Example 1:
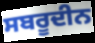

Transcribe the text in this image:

ਸਬਰੂਦੀਨ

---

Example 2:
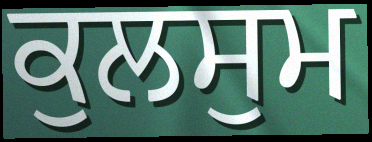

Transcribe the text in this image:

ਕੁਲਸੁਮ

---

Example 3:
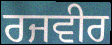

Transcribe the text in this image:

ਰਜਵੀਰ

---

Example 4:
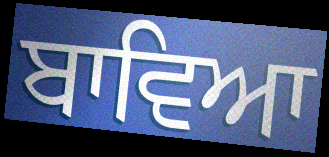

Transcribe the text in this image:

ਬਾਵਿਆ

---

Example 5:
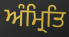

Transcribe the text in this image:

ਅੰਮ੍ਰਿਤਿ